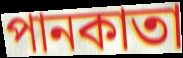
পানকাতা